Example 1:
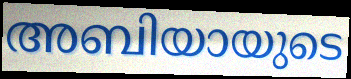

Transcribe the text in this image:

അബിയായുടെ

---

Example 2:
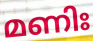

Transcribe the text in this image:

മണിഃ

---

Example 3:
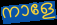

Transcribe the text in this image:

നാളേ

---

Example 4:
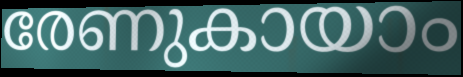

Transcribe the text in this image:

രേണുകായാം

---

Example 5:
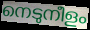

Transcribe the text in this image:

നെടുനീളം